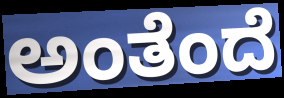
ಅಂತೆಂದೆ